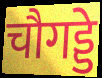
चौगड्डे